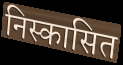
निस्कासित